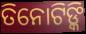
ତିନୋଟିଙ୍କି